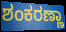
ಶಂಕರಣ್ಣಾ